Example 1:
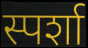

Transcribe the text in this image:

स्पर्शा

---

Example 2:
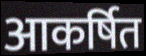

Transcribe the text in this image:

आकर्षित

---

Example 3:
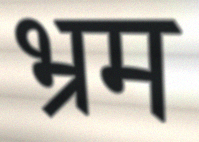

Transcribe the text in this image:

भ्रम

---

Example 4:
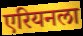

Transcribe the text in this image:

एरियनला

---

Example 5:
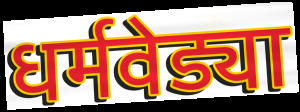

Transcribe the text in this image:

धर्मवेड्या